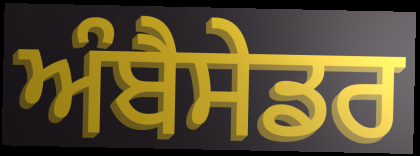
ਅੰਬੈਸੇਡਰ